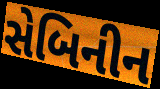
સેબિનીન